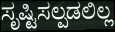
ಸೃಷ್ಟಿಸಲ್ಪಡಲಿಲ್ಲ